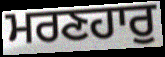
ਮਰਣਹਾਰੁ